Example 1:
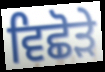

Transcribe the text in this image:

ਵਿਛੋੜੇ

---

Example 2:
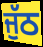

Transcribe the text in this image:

ਜੁੱਠ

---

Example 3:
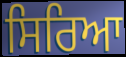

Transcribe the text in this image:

ਸਿਰਿਆ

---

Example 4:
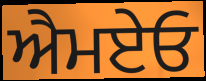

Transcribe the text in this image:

ਐਮਏਓ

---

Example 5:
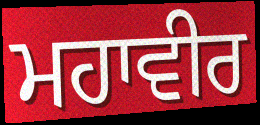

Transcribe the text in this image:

ਮਹਾਵੀਰ